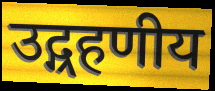
उद्ग्रहणीय